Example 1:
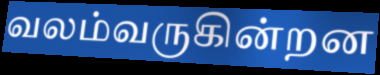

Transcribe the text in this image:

வலம்வருகின்றன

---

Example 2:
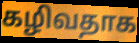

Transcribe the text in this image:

கழிவதாக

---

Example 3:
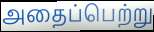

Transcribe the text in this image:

அதைப்பெற்று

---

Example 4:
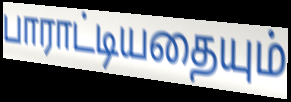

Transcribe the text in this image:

பாராட்டியதையும்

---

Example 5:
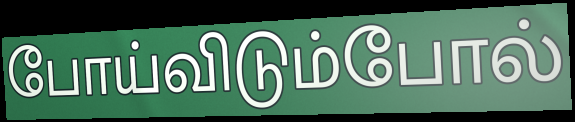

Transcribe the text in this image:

போய்விடும்போல்